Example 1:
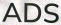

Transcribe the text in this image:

ADS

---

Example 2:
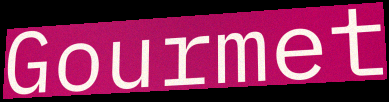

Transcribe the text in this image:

Gourmet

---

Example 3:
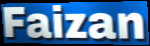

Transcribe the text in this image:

Faizan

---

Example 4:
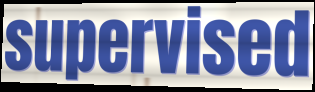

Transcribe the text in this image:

supervised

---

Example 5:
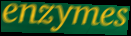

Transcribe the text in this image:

enzymes